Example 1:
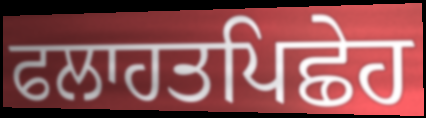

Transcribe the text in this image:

ਫਲਾਹਤਪਿਛੇਹ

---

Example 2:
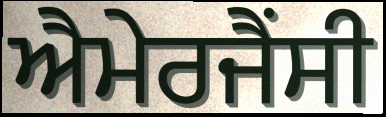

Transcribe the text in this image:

ਐਮੇਰਜੈਂਸੀ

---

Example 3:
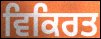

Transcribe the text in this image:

ਵਿਕਿਰਤ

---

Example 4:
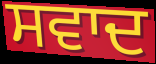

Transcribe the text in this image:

ਸਵਾਦ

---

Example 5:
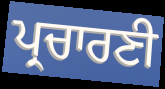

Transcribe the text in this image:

ਪ੍ਰਚਾਰਣੀ